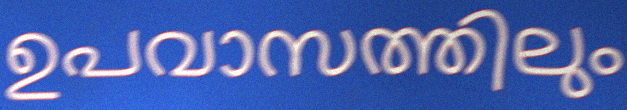
ഉപവാസത്തിലും